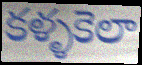
కళ్ళకెలా